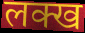
लक्ख